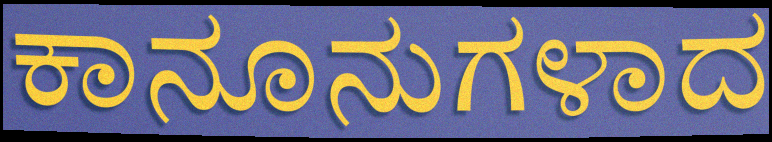
ಕಾನೂನುಗಳಾದ